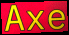
Axe